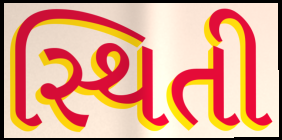
સ્થિતી